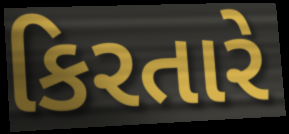
કિરતારે